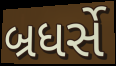
બ્રધર્સે